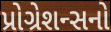
પ્રોગ્રેશન્સનો